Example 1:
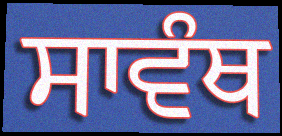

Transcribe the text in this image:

ਸਾਵੰਥ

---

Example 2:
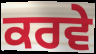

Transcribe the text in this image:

ਕਰਵੇ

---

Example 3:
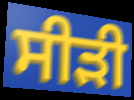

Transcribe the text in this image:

ਸੀੜੀ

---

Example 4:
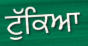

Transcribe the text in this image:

ਟੁੱਕਿਆ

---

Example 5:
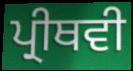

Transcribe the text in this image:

ਪ੍ਰੀਥਵੀ